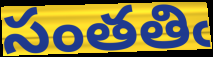
సంతతిఁ